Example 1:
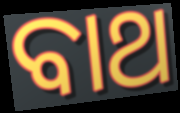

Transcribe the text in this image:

ବାଥ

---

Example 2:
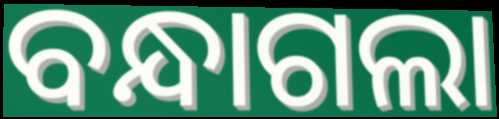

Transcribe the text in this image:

ବନ୍ଧାଗଲା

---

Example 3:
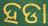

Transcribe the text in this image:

ହଡା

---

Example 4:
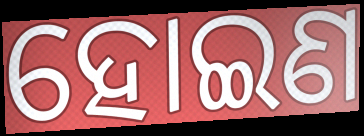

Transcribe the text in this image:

ହୋଇଣ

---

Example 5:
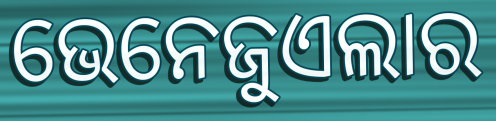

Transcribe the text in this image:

ଭେନେଜୁଏଲାର